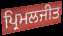
ਪ੍ਰਿਮਲਜੀਤ